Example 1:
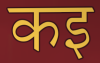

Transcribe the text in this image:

कइ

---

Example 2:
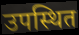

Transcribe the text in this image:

उपस्थित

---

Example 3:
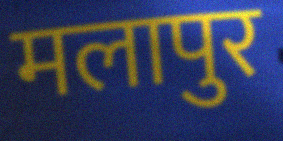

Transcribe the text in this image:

मलापुर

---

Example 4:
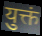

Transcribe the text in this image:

युक्तं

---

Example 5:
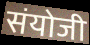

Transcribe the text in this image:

संयोजी